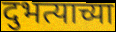
दुभत्याच्या